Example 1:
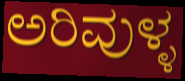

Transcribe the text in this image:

ಅರಿವುಳ್ಳ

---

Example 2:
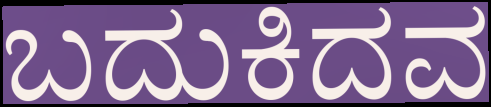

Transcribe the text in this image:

ಬದುಕಿದವ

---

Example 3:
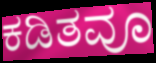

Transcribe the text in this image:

ಕಡಿತವೂ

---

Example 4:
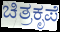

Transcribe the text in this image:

ಚಿತ್ರಕೃಪೆ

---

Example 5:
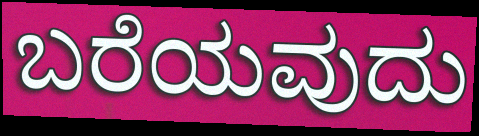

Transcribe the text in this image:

ಬರೆಯವುದು